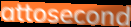
attosecond